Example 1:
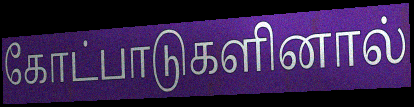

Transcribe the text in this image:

கோட்பாடுகளினால்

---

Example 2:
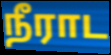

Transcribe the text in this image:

நீராட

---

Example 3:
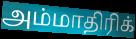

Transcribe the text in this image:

அம்மாதிரிக்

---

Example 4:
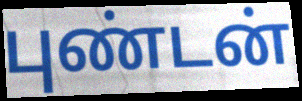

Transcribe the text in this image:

புண்டன்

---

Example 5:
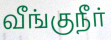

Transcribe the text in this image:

வீங்குநீர்